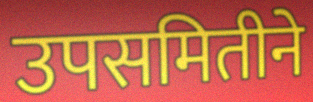
उपसमितीने